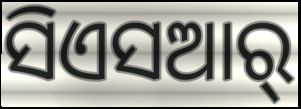
ସିଏସଆର୍